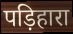
पड़िहारा